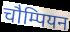
चौम्पियन